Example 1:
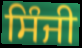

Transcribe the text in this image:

ਸਿੰਜੀ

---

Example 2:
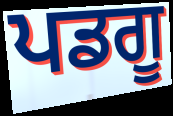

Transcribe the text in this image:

ਪਡਗੂ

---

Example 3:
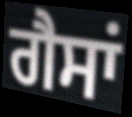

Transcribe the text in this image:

ਗੈਸਾਂ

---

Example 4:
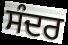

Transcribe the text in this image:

ਸੰਦਰ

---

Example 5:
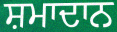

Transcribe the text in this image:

ਸ਼ਮਾਦਾਨ